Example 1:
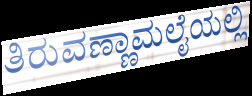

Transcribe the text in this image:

ತಿರುವಣ್ಣಾಮಲೈಯಲ್ಲಿ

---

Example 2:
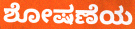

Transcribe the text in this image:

ಶೋಷಣೆಯ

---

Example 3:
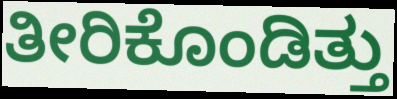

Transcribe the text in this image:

ತೀರಿಕೊಂಡಿತ್ತು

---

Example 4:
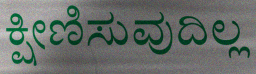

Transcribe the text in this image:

ಕ್ಷೀಣಿಸುವುದಿಲ್ಲ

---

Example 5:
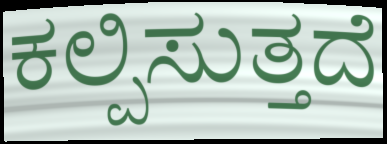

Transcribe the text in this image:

ಕಲ್ಪಿಸುತ್ತದೆ